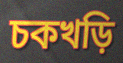
চকখড়ি